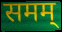
समम्